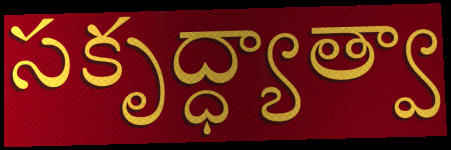
సకృద్ధ్యాత్వా